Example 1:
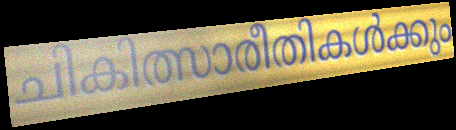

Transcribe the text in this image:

ചികിത്സാരീതികൾക്കും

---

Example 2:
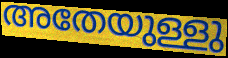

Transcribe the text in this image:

അതേയുള്ളു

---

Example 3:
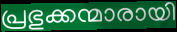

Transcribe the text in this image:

പ്രഭുക്കന്മാരായി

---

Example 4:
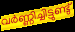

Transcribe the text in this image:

വർണ്ണിച്ചിട്ടുണ്ടു്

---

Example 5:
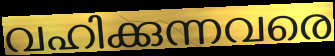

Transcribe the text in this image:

വഹിക്കുന്നവരെ